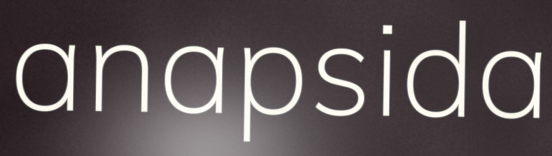
anapsida